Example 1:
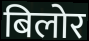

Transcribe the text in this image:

बिलोर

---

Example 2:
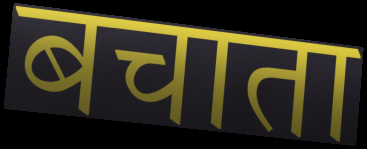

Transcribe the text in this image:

बचाता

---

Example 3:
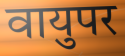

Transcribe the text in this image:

वायुपर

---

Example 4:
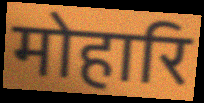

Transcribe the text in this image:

मोहारि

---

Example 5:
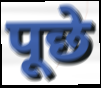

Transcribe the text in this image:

पूछे